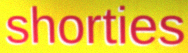
shorties